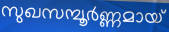
സുഖസമ്പൂർണ്ണമായ്